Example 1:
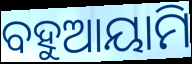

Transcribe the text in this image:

ବହୁଆୟାମି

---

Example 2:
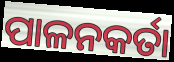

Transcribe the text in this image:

ପାଳନକର୍ତା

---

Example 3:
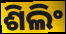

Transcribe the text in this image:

ଶିଲିଂ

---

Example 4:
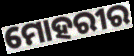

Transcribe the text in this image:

ମୋହରୀର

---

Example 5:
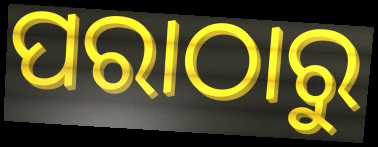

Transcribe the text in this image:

ପରାଠାରୁ